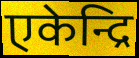
एकेन्द्रि